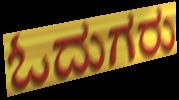
ಓದುಗರು